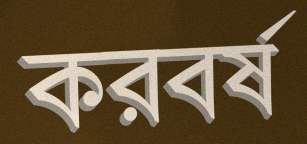
করবর্ষ